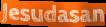
Jesudasan